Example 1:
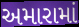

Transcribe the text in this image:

અમારામાં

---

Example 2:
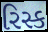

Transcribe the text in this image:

રિસ્ક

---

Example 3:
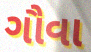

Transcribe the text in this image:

ગૌવા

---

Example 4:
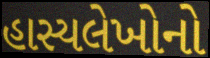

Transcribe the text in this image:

હાસ્યલેખોનો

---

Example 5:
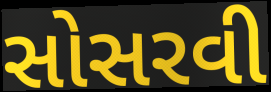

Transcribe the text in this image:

સોસરવી